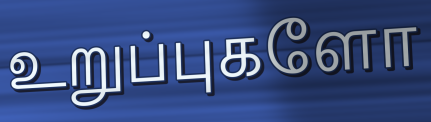
உறுப்புகளோ